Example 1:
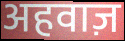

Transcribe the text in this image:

अहवाज़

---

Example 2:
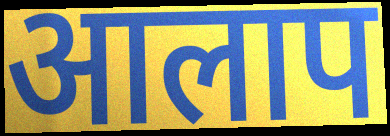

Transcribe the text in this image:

आलाप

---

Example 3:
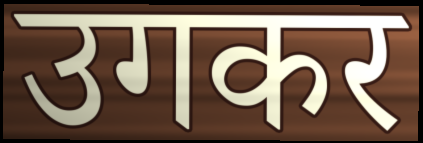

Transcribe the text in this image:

उगकर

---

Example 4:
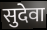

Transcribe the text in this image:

सुदेवा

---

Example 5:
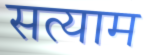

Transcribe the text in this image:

सत्याम